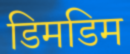
डिमडिम